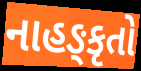
નાહઙ્કૃતો